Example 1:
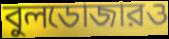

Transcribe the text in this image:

বুলডোজারও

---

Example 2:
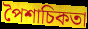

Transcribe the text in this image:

পৈশাচিকতা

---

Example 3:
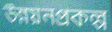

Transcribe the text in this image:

উন্নয়নপ্রকল্প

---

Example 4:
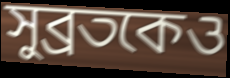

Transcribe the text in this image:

সুব্রতকেও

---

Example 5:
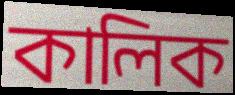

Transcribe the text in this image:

কালিক